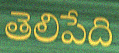
తెలిపేది